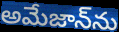
అమేజాన్‌ను